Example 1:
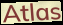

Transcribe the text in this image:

Atlas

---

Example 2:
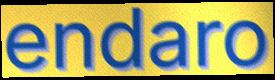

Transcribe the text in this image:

endaro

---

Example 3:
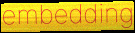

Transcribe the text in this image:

embedding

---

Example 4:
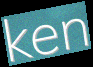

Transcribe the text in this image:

ken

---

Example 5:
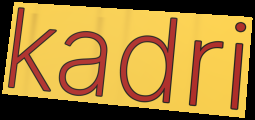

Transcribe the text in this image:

kadri